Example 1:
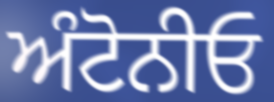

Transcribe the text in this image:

ਅੰਟੋਨੀਓ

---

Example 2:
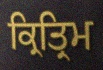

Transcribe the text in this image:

ਕ੍ਰਿਤ੍ਰਿਮ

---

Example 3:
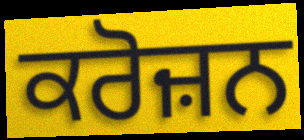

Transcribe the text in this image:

ਕਰੋਜ਼ਨ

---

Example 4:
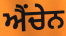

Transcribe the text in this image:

ਐਂਚੇਨ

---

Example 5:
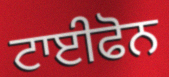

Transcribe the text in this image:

ਟਾਈਫੋਨ